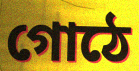
গোঠে